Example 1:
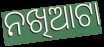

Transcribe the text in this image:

ନଖିଆଟା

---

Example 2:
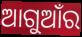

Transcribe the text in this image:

ଆଗୁଆଁର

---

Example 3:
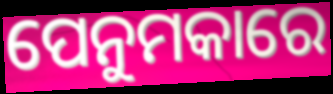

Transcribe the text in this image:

ପେନୁମକାରେ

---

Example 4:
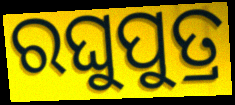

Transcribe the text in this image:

ରଘୁପୁତ୍ର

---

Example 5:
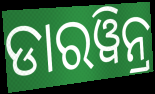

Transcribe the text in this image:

ଡାରୱିନ୍ର